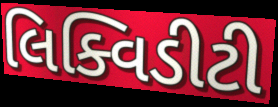
લિક્વિડીટી